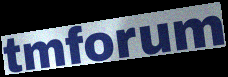
tmforum